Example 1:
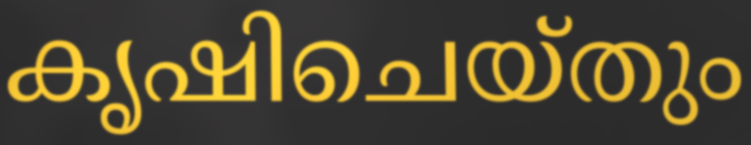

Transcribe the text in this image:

കൃഷിചെയ്തും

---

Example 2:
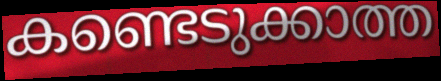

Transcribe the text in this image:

കണ്ടെടുക്കാത്ത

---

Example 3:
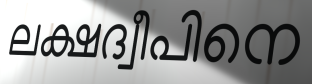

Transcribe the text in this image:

ലക്ഷദ്വീപിനെ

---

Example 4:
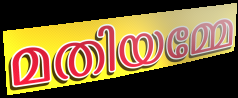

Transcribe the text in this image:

മതിയമ്മേ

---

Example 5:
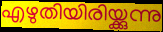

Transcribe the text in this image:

എഴുതിയിരിയ്ക്കുന്നു